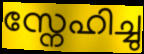
സ്നേഹിച്ചു